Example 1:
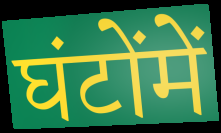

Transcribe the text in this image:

घंटोंमें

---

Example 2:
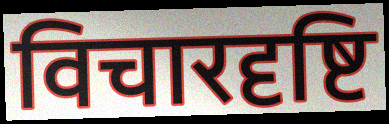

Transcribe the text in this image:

विचारदृष्टि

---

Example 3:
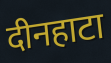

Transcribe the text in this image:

दीनहाटा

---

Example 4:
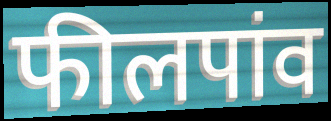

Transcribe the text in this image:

फीलपांव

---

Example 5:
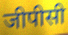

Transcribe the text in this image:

जीपीसी